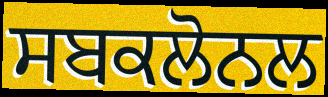
ਸਬਕਲੋਨਲ